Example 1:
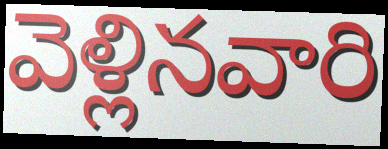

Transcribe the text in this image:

వెళ్లినవారి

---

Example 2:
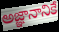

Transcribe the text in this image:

అజ్ఞానానికే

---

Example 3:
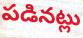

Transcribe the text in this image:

పడినట్లు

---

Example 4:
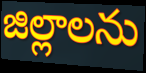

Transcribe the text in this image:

జిల్లాలను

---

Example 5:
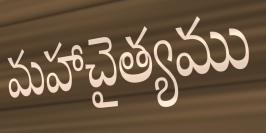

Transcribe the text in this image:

మహాచైత్యము